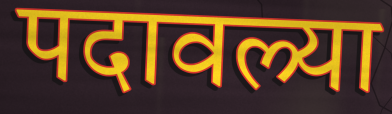
पदावल्या